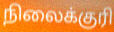
நிலைக்குரி